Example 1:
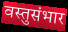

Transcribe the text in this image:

वस्तुसंभार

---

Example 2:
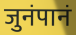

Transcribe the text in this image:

जुनंपानं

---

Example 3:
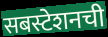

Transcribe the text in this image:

सबस्टेशनची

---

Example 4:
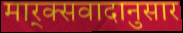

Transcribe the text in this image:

मार्क्सवादानुसार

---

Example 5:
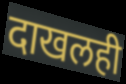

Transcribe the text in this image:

दाखलही